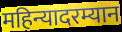
महिन्यादरम्यान